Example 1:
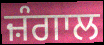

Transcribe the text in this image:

ਜ਼ੰਗਾਲ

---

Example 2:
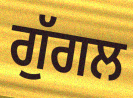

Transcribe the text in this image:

ਗੁੱਗਲ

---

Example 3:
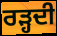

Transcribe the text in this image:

ਰੜ੍ਹਦੀ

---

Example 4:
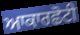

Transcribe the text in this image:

ਆਕਾਰਛੋਟੀ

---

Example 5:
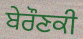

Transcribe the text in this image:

ਬੇਰੌਣਕੀ